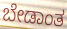
ಬೇಡಾಂತ